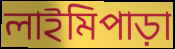
লাইমিপাড়া